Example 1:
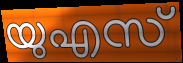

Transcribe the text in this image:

യുഎസ്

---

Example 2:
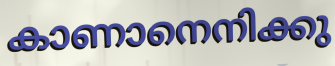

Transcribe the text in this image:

കാണാനെനിക്കു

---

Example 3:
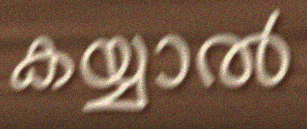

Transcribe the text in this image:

കയ്യാൽ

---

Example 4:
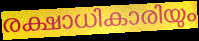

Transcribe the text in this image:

രക്ഷാധികാരിയും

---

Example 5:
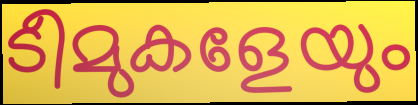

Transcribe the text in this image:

ടീമുകളേയും